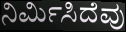
ನಿರ್ಮಿಸಿದೆವು